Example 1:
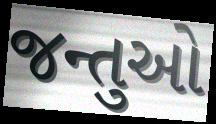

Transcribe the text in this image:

જન્તુઓ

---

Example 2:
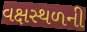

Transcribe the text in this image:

વક્ષસ્થળની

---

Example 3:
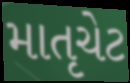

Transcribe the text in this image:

માતૃચેટ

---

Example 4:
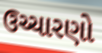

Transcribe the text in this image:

ઉચ્ચારણો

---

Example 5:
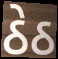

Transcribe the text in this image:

ઠેઠ